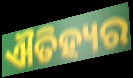
ଐତିହ୍ୟର